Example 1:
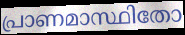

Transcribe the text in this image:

പ്രാണമാസ്ഥിതോ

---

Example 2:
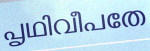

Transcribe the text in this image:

പൃഥിവീപതേ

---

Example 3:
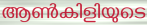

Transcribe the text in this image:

ആൺകിളിയുടെ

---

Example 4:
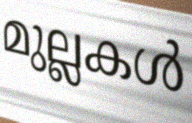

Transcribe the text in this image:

മുല്ലകൾ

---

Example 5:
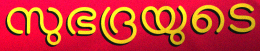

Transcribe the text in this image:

സുഭദ്രയുടെ